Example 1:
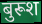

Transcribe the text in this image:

बुरूश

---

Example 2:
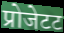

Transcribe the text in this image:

प्रोजेटट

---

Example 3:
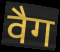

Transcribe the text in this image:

वैग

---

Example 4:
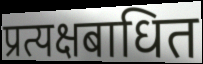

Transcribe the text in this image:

प्रत्यक्षबाधित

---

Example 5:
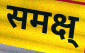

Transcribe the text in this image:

समक्ष्